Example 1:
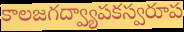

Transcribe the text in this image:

కాలజగద్వ్యాపకస్వరూప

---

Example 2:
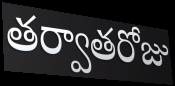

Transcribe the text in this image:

తర్వాతరోజు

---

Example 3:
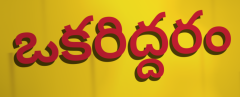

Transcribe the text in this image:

ఒకరిద్దరం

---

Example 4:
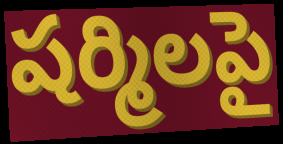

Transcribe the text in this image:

షర్మిలపై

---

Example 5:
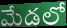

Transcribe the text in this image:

మేడలో